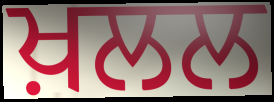
ਖ਼ਲਲ